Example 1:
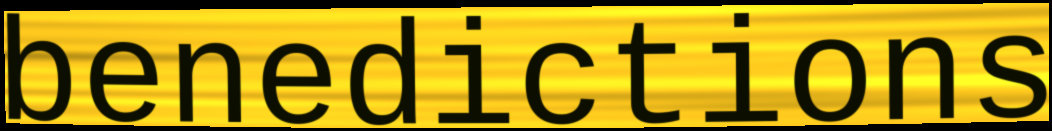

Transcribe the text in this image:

benedictions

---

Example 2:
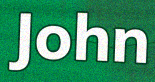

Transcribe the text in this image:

John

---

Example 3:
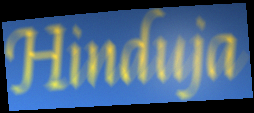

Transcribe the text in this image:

Hinduja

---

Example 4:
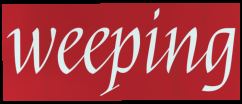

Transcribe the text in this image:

weeping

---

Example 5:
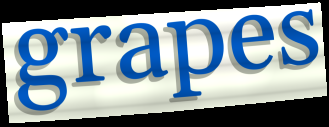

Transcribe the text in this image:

grapes